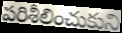
పరిశీలించుకుని